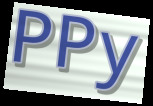
PPy